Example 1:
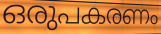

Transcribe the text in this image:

ഒരുപകരണം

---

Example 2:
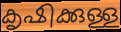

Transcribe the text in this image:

കൃഷിക്കുള്ള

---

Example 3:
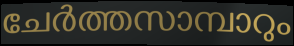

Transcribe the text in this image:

ചേർത്തസാമ്പാറും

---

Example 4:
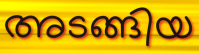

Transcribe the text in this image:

അടങ്ങിയ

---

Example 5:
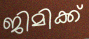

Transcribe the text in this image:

ജിമിക്ക്